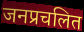
जनप्रचलित